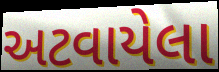
અટવાયેલા